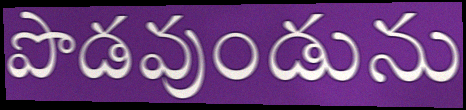
పొడవుండును